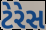
ટેરેસ